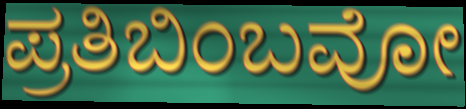
ಪ್ರತಿಬಿಂಬವೋ